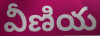
వీణియ